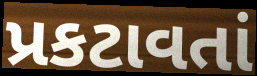
પ્રકટાવતાં